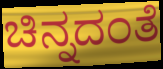
ಚಿನ್ನದಂತೆ